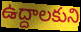
ఉద్దాలకుని